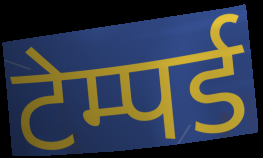
टेम्पर्ड